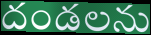
దండలను